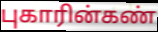
புகாரின்கண்